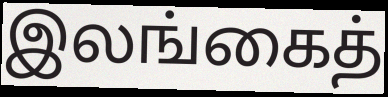
இலங்கைத்